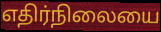
எதிர்நிலையை